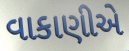
વાકાણીએ